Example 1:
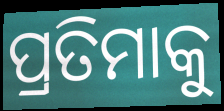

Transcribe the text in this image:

ପ୍ରତିମାକୁ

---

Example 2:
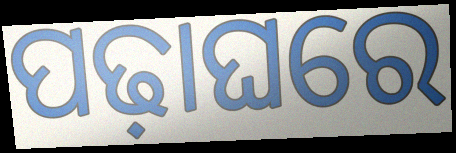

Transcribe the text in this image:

ପଢ଼ାଘରେ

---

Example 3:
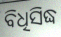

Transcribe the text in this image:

ବିଧିସିଦ୍ଧ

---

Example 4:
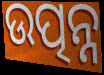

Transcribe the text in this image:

ଉତ୍ପନ୍ନ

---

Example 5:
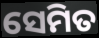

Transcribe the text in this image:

ସେମିତ